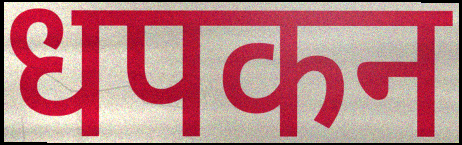
धपकन